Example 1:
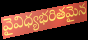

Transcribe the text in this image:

వైవిధ్యభరితమైన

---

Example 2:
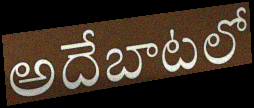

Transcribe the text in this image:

అదేబాటలో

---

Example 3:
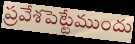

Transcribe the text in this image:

ప్రవేశపెట్టేముందు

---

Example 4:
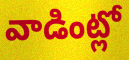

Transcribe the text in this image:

వాడింట్లో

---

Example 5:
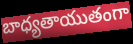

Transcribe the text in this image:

బాధ్యతాయుతంగా